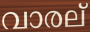
വാരല്